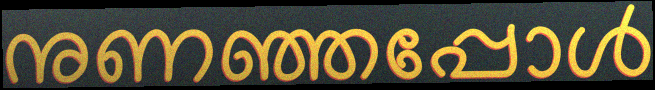
നുണഞ്ഞപ്പോൾ